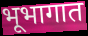
भूभागात